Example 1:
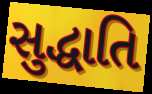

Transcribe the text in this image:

સુદ્ધાતિ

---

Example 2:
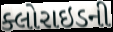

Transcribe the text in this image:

ક્લોરાઇડની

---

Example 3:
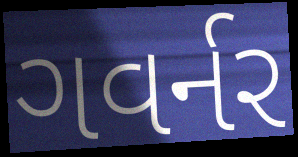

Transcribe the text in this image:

ગવર્નર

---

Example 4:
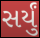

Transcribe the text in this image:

સર્યું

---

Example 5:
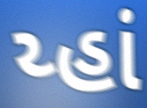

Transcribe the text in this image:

ય્હાં